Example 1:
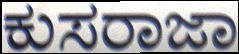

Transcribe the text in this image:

ಕುಸರಾಜಾ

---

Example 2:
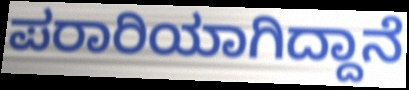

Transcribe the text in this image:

ಪರಾರಿಯಾಗಿದ್ದಾನೆ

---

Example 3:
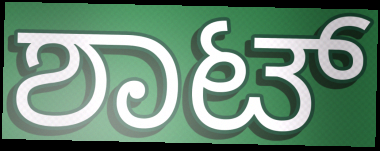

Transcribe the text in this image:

ಶಾಟ್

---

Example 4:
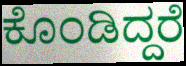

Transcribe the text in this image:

ಕೊಂಡಿದ್ದರೆ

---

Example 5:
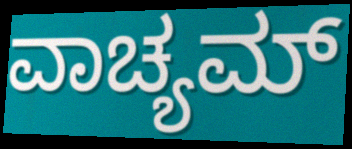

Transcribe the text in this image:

ವಾಚ್ಯಮ್